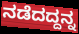
ನಡೆದದ್ದನ್ನ